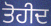
ਤੋਹੀਦ